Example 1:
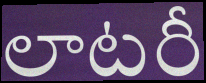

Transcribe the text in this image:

లాటరీ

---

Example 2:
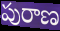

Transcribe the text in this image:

పురాణ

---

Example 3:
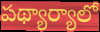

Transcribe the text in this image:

పథ్యార్యాలో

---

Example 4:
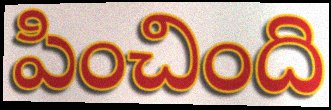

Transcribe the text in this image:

పించింది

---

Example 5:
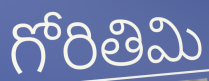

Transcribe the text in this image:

గోరితిమి